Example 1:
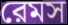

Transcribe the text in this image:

রেমস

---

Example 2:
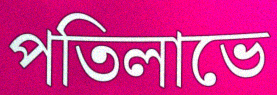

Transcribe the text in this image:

পতিলাভে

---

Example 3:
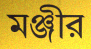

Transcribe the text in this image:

মঞ্জীর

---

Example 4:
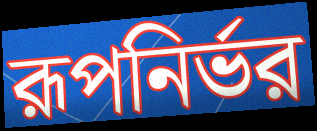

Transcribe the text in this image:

রূপনির্ভর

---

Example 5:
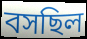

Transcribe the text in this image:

বসছিল